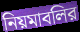
নিয়মাবলির